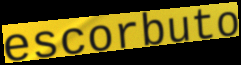
escorbuto